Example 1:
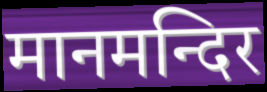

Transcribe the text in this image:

मानमन्दिर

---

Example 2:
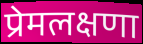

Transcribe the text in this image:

प्रेमलक्षणा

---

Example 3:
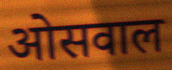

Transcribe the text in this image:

ओसवाल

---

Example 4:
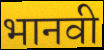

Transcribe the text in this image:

भानवी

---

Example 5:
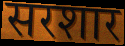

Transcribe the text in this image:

सरशार